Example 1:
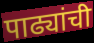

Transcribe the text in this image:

पाढ्यांची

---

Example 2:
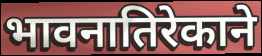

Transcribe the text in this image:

भावनातिरेकाने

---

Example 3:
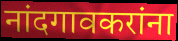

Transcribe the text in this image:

नांदगावकरांना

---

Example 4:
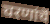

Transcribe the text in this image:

चरणांचें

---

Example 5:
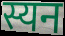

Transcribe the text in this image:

स्यन